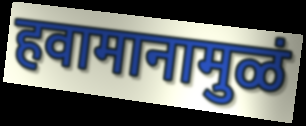
हवामानामुळं